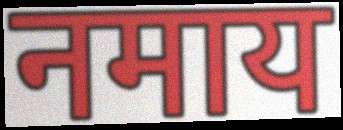
नमाय